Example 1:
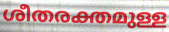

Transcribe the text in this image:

ശീതരക്തമുള്ള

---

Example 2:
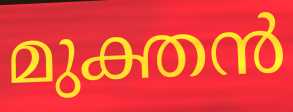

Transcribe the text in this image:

മുക്തൻ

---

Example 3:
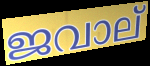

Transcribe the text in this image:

ജവാല്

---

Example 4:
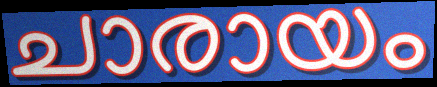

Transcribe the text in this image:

ചാരായം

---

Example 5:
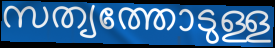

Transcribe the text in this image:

സത്യത്തോടുള്ള